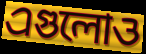
এগুলোও